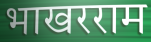
भाखरराम